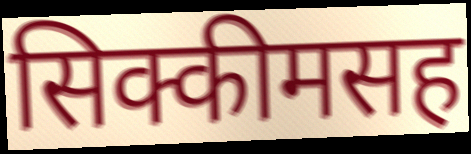
सिक्कीमसह